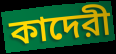
কাদেরী